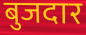
बुजदार